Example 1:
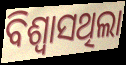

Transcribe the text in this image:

ବିଶ୍ୱାସଥିଲା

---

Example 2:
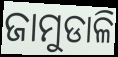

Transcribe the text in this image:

ଜାମୁଡାଳି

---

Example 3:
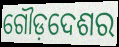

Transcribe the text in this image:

ଗୌଡ଼ଦେଶର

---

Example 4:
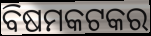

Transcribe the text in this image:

ବିଷମକଟକର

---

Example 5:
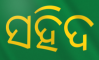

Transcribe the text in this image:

ସହିଦ